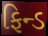
ફિન્ડ